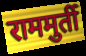
राममुर्ती